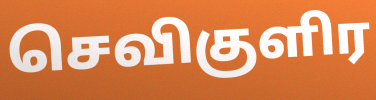
செவிகுளிர